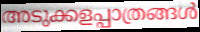
അടുക്കളപ്പാത്രങ്ങൾ